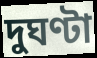
দুঘণ্টা